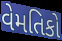
વેમતિકો